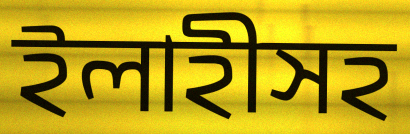
ইলাহীসহ